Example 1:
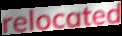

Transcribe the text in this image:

relocated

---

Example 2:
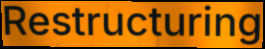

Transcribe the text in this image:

Restructuring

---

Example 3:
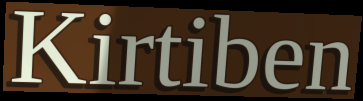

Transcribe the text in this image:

Kirtiben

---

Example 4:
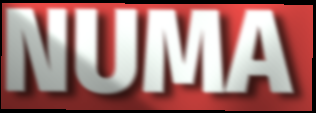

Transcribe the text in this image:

NUMA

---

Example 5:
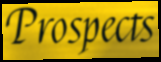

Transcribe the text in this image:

Prospects